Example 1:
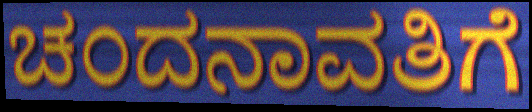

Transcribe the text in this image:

ಚಂದನಾವತಿಗೆ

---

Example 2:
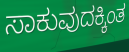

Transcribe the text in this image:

ಸಾಕುವುದಕ್ಕಿಂತ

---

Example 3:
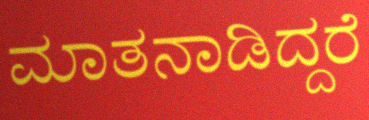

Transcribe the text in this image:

ಮಾತನಾಡಿದ್ದರೆ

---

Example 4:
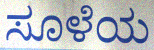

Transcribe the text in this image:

ಸೂಳೆಯ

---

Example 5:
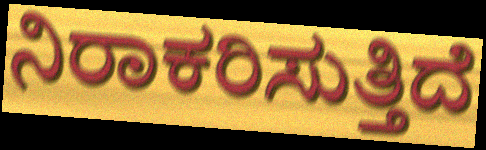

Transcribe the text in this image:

ನಿರಾಕರಿಸುತ್ತಿದೆ